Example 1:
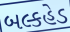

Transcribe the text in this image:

બલ્કહેડ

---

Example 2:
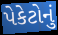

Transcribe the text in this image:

પેકેટોનું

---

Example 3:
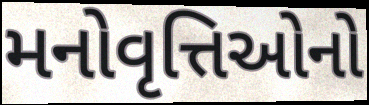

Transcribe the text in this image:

મનોવૃત્તિઓનો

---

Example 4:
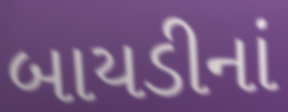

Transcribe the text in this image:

બાયડીનાં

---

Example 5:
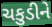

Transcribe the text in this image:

ચકુડીને